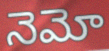
నెమో